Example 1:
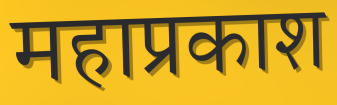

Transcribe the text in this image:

महाप्रकाश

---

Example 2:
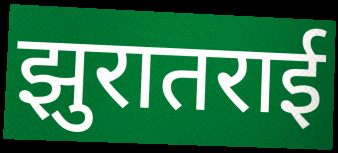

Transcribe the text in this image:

झुरातराई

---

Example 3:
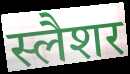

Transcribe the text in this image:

स्लैशर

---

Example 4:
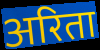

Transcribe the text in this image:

अरिता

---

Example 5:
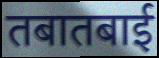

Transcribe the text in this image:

तबातबाई